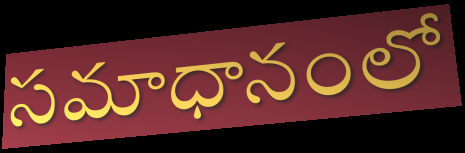
సమాధానంలో